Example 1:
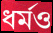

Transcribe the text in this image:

ধর্মও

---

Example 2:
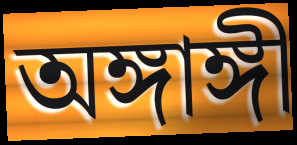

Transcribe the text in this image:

অঙ্গাঙ্গী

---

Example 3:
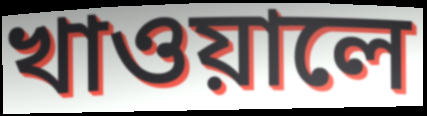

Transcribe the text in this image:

খাওয়ালে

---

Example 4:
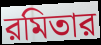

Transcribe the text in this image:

রমিতার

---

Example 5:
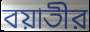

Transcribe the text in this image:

বয়াতীর